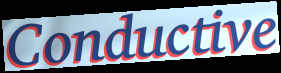
Conductive